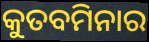
କୁତବମିନାର